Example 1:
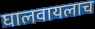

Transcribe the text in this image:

घालवायलाच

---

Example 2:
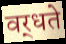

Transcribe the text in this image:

वर्धते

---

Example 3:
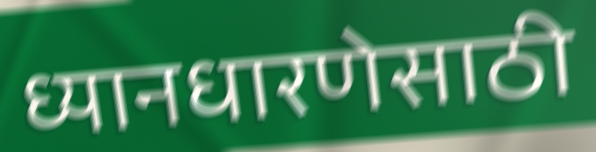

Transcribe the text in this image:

ध्यानधारणेसाठी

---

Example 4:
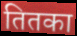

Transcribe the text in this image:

तितका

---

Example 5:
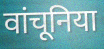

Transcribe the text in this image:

वांचूनिया